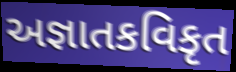
અજ્ઞાતકવિકૃત